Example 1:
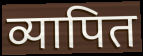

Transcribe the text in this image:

व्यापित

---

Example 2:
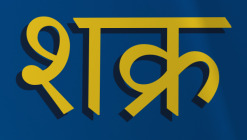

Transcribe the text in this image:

शक्र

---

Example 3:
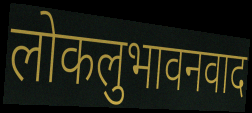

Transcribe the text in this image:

लोकलुभावनवाद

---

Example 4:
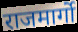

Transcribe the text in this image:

राजमार्गो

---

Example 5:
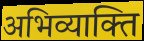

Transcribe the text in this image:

अभिव्याक्ति